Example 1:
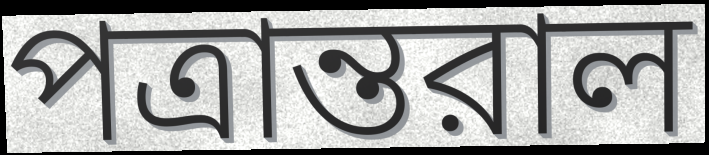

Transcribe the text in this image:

পত্রান্তরাল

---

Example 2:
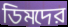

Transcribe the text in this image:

ডিমদের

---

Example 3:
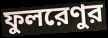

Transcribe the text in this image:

ফুলরেণুর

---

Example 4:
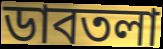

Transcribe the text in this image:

ডাবতলা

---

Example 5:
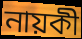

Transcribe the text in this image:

নায়কী